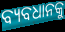
ବ୍ୟବଧାନକୁ